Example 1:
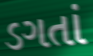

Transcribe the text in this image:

ડગતાં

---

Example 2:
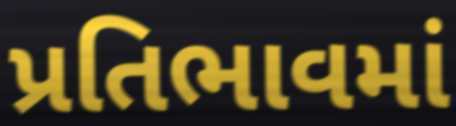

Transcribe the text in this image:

પ્રતિભાવમાં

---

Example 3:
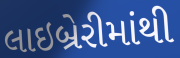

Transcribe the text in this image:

લાઇબ્રેરીમાંથી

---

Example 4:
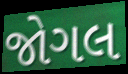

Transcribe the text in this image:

જોગલ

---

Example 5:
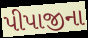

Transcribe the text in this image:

પીપાજીના